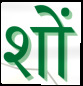
शों